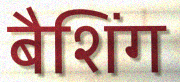
बैशिंग